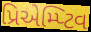
પ્રિએમ્પ્ટિવ